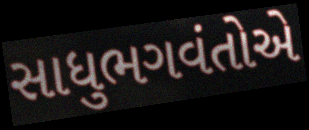
સાધુભગવંતોએ